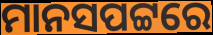
ମାନସପଟ୍ଟରେ